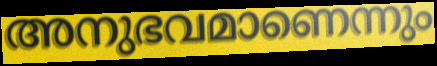
അനുഭവമാണെന്നും